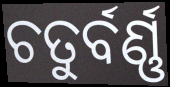
ଚତୁର୍ବର୍ଣ୍ଣ